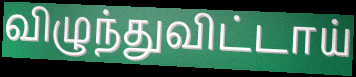
விழுந்துவிட்டாய்